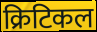
क्रिटिकल